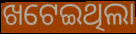
ଖଟେଇଥିଲା